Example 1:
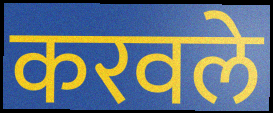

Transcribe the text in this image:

करवले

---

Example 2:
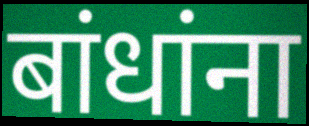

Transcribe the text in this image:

बांधांना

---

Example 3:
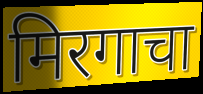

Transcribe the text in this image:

मिरगाचा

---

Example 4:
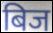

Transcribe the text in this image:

बिज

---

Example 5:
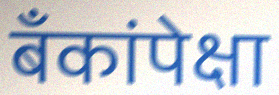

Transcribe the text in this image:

बँकांपेक्षा